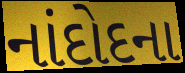
નાંદોદના